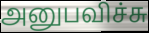
அனுபவிச்சு